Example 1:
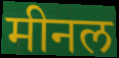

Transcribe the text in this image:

मीनल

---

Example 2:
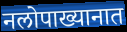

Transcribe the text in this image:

नलोपाख्यानात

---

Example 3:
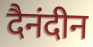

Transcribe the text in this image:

दैनंदीन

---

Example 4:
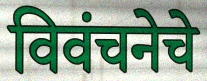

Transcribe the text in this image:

विवंचनेचे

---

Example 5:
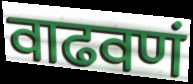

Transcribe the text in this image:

वाढवणं